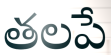
తలపే